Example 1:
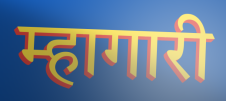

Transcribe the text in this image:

म्हागारी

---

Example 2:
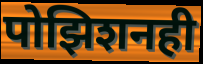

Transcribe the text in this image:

पोझिशनही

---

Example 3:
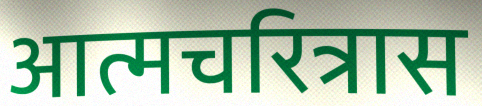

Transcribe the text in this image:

आत्मचरित्रास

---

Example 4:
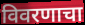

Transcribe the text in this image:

विवरणाचा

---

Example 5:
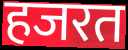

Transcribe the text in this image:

हजरत